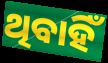
ଥିବାହିଁ